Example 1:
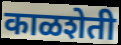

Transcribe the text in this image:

काळशेती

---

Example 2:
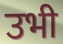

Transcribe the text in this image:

उभी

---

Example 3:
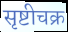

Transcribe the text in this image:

सृष्टीचक्र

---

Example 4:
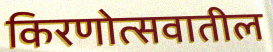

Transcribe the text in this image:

किरणोत्सवातील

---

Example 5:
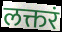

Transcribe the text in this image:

लक्तरं